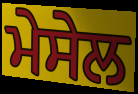
ਮੇਸੇਲ